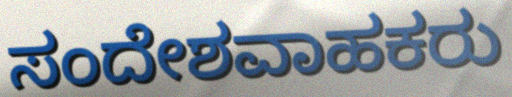
ಸಂದೇಶವಾಹಕರು